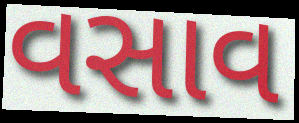
વસાવ